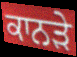
ਕਾਨੜੇ